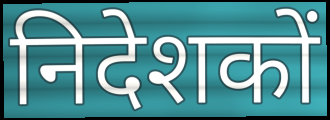
निदेशकों